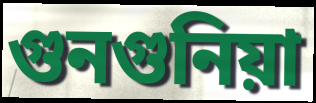
গুনগুনিয়া